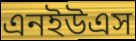
এনইউএস